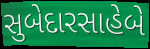
સુબેદારસાહેબે